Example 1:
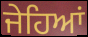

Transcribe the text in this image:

ਜੇਹਿਆਂ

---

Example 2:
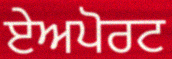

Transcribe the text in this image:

ਏਅਪੋਰਟ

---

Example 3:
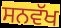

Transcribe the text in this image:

ਸਨਵੱਖ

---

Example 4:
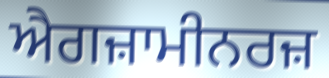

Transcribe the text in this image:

ਐਗਜ਼ਾਮੀਨਰਜ਼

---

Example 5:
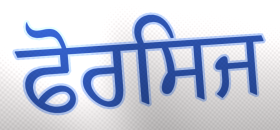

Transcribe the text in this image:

ਫੋਰਸਿਜ